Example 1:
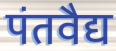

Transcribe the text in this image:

पंतवैद्य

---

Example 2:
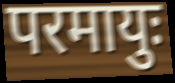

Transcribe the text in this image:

परमायुः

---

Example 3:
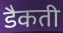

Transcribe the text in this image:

डैकती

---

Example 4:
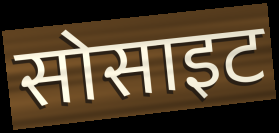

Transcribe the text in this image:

सोसाइट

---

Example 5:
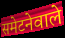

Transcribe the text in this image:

समेटनेवाले